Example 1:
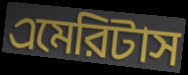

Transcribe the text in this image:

এমেরিটাস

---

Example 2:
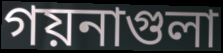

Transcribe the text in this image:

গয়নাগুলা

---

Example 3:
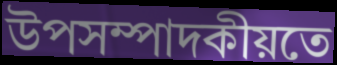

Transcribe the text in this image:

উপসম্পাদকীয়তে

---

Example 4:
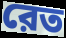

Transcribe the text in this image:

রেত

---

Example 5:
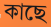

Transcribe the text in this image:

কাছে